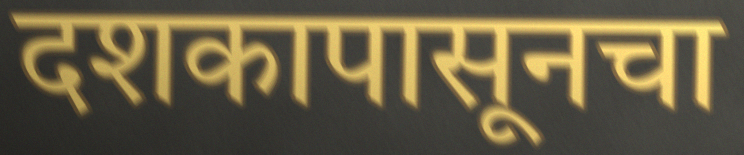
दशकापासूनचा